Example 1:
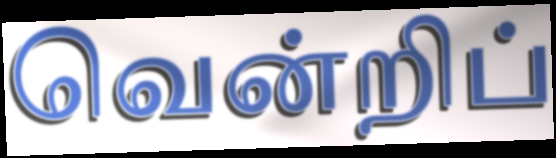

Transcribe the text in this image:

வென்றிப்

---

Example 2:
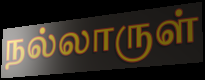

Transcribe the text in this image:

நல்லாருள்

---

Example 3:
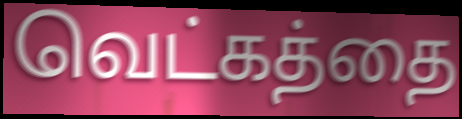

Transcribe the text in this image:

வெட்கத்தை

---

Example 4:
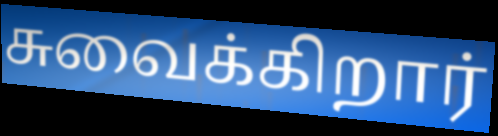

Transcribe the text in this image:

சுவைக்கிறார்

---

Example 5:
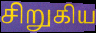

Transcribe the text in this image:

சிறுகிய